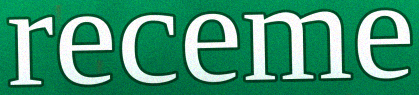
receme